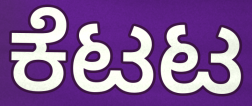
ಕೆಟಟ